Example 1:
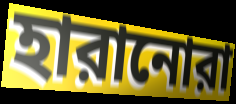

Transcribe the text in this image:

হারানোরা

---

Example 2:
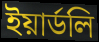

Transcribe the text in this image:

ইয়ার্ডলি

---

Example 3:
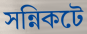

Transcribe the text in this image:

সন্নিকটে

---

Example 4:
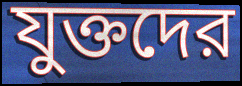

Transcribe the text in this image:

যুক্তদের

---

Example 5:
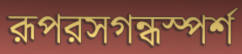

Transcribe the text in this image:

রূপরসগন্ধস্পর্শ